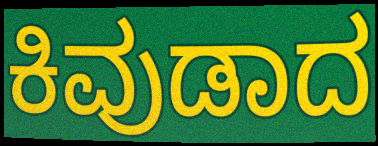
ಕಿವುಡಾದ